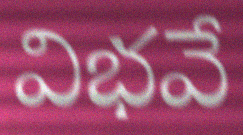
విభవే